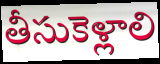
తీసుకెళ్లాలి